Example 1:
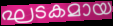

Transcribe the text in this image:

ഘടകമായ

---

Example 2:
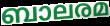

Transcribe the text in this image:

ബാലരമ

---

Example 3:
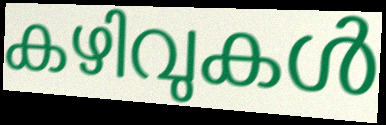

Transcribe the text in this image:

കഴിവുകൾ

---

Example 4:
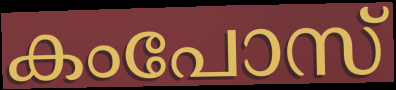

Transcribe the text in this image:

കംപോസ്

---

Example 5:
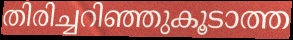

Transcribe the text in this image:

തിരിച്ചറിഞ്ഞുകൂടാത്ത